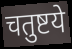
चतुष्टये